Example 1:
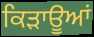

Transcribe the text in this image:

ਕਿੜਾਊਆਂ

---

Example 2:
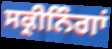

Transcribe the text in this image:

ਸਕ੍ਰੀਨਿੰਗਾਂ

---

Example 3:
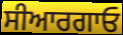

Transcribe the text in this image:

ਸੀਆਰਗਾਓ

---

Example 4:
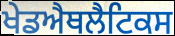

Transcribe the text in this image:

ਖੇਡਐਥਲੈਟਿਕਸ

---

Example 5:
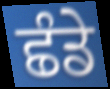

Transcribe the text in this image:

ਛੰਡੇ